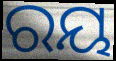
ରୟ